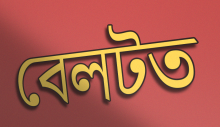
বেলটত